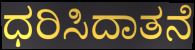
ಧರಿಸಿದಾತನೆ